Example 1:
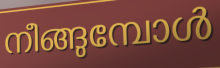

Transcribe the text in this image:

നീങ്ങുമ്പോൾ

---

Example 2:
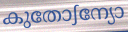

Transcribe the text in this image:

കുതോഽന്യോ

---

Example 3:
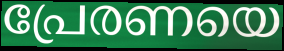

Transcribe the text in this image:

പ്രേരണയെ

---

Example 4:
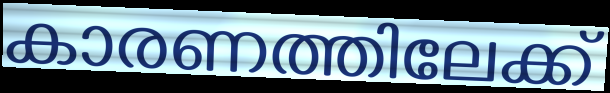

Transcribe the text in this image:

കാരണത്തിലേക്ക്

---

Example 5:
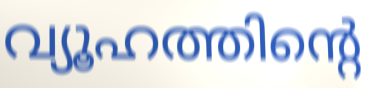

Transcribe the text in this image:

വ്യൂഹത്തിന്റെ